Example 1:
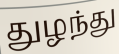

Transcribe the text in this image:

துழந்து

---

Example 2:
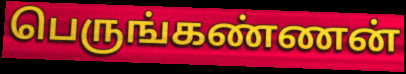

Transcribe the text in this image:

பெருங்கண்ணன்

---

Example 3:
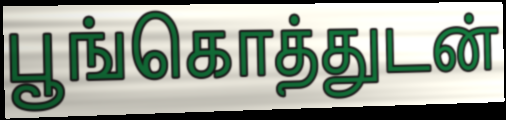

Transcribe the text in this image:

பூங்கொத்துடன்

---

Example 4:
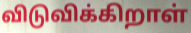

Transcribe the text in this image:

விடுவிக்கிறாள்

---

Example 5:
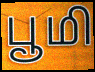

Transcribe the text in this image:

பூமி